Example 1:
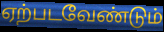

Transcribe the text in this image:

ஏற்படவேண்டும்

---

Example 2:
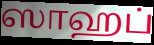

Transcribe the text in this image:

ஸாஹப்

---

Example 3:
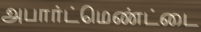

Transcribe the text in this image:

அபார்ட்மெண்ட்டை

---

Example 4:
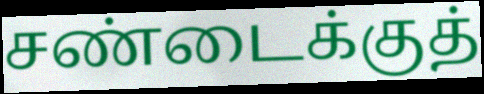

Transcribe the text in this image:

சண்டைக்குத்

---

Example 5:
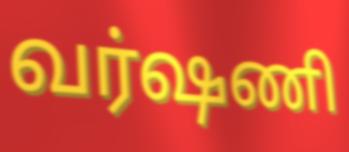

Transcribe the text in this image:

வர்ஷணி